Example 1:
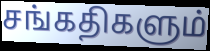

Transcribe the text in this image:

சங்கதிகளும்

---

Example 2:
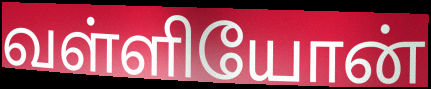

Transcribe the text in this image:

வள்ளியோன்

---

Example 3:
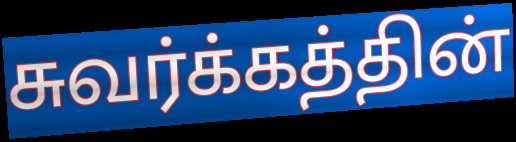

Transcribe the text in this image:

சுவர்க்கத்தின்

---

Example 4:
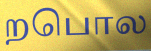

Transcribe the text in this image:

றபொல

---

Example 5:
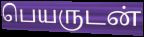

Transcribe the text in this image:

பெயருடன்